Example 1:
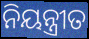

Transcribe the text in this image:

ନିୟନ୍ତ୍ରୀତ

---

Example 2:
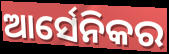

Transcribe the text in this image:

ଆର୍ସେନିକର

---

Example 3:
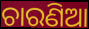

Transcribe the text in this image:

ଚାରଣିଆ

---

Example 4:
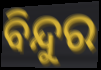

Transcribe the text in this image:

ବିନ୍ଦୁର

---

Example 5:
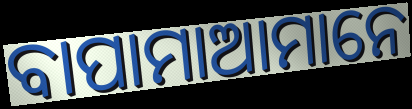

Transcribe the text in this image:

ବାପାମାଆମାନେ